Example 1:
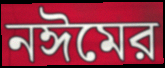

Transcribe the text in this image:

নঈমের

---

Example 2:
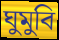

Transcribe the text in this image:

ঘুমুবি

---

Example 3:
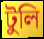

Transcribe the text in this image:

টুলি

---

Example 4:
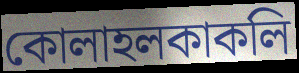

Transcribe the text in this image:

কোলাহলকাকলি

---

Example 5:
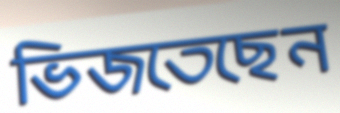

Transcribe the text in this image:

ভিজতেছেন